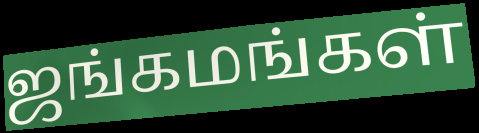
ஜங்கமங்கள்